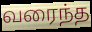
வரைந்த